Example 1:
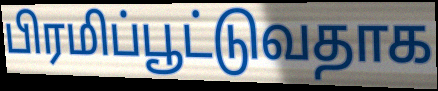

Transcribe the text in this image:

பிரமிப்பூட்டுவதாக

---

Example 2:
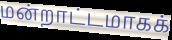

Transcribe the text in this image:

மன்றாட்டமாகக்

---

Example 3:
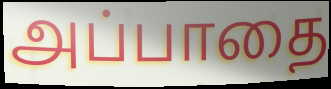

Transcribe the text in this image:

அப்பாதை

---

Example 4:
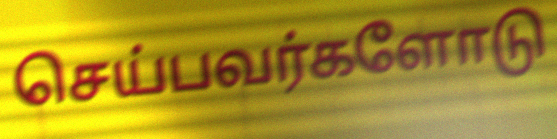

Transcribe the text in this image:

செய்பவர்களோடு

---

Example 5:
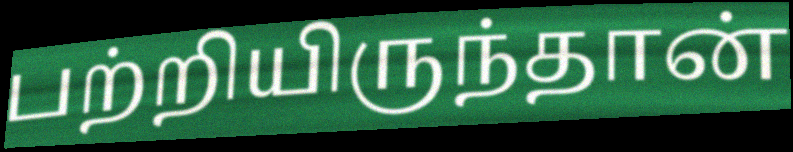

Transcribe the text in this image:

பற்றியிருந்தான்